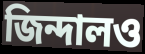
জিন্দালও